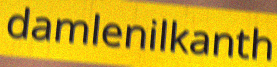
damlenilkanth